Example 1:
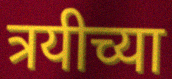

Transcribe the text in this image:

त्रयीच्या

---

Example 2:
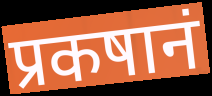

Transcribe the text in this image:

प्रकषानं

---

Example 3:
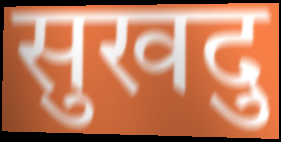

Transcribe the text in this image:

सुखदु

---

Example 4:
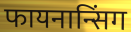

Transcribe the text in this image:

फायनान्सिंग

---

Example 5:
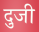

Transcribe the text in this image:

दुजी